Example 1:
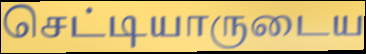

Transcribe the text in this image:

செட்டியாருடைய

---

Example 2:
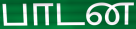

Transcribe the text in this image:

பாடன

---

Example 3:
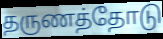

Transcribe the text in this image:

தருணத்தோடு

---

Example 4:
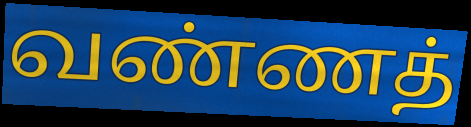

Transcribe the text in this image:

வண்ணத்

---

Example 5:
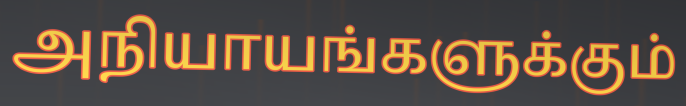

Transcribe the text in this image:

அநியாயங்களுக்கும்